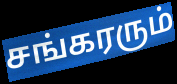
சங்கரரும்